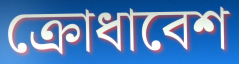
ক্রোধাবেশ